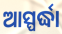
ଆସ୍ପର୍ଦ୍ଧା